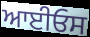
ਆਈਓਸ